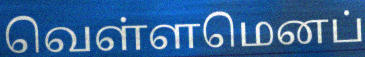
வெள்ளமெனப்